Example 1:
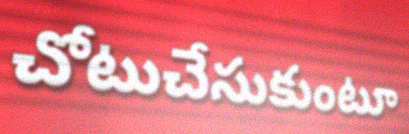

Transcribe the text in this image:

చోటుచేసుకుంటూ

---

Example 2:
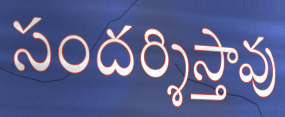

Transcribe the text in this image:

సందర్శిస్తావు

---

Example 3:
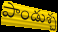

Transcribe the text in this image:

పాండుశ్చ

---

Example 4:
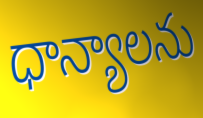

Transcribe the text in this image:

ధాన్యాలను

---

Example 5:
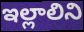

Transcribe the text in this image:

ఇల్లాలిని